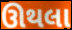
ઊથલા